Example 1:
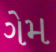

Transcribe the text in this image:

ગેમ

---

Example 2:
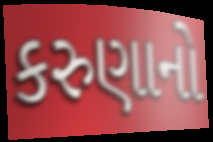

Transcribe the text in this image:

કરુણાનો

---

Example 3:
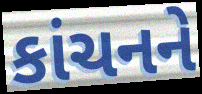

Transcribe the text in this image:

કાંચનને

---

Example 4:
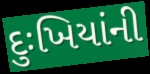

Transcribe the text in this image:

દુઃખિયાંની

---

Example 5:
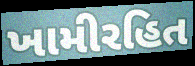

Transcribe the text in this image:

ખામીરહિત